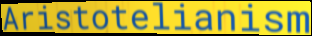
Aristotelianism